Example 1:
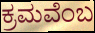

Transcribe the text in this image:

ಕ್ರಮವೆಂಬ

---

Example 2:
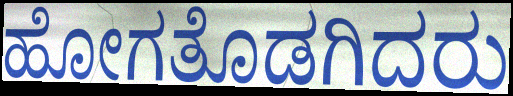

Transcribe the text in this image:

ಹೋಗತೊಡಗಿದರು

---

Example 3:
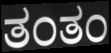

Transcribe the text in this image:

ತಂತಂ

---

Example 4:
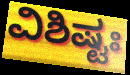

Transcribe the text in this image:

ವಿಶಿಷ್ಟಃ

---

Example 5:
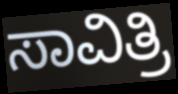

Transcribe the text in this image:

ಸಾವಿತ್ರಿ